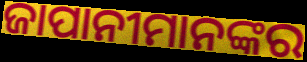
ଜାପାନୀମାନଙ୍କର